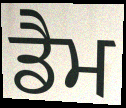
ਡੈਮ